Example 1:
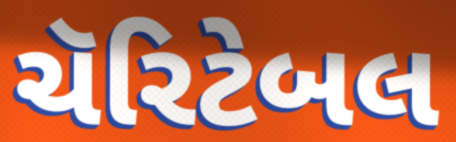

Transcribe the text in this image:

ચૅરિટેબલ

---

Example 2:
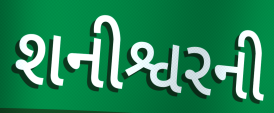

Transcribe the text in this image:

શનીશ્વરની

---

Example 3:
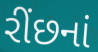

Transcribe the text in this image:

રીંછનાં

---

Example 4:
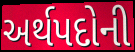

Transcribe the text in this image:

અર્થપદોની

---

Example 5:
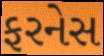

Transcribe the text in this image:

ફરનેસ